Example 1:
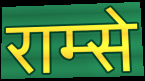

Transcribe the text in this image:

राम्से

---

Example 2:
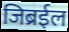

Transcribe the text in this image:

जिब्रईल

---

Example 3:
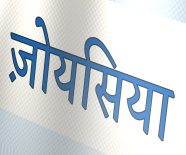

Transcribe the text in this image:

ज़ोयसिया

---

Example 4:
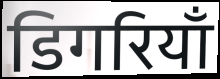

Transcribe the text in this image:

डिगरियाँ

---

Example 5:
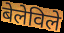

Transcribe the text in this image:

बेलेविले